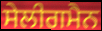
ਸੇਲੀਗਮੈਨ